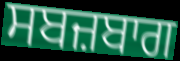
ਸਬਜ਼ਬਾਗ